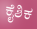
ಕೈಶಿಕ